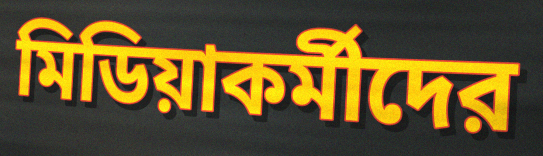
মিডিয়াকর্মীদের